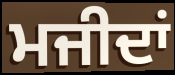
ਮਜੀਦਾਂ